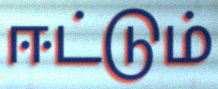
ஈட்டும்